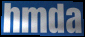
hmda